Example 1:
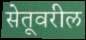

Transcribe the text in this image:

सेतूवरील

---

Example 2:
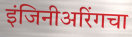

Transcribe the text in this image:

इंजिनीअरिंगचा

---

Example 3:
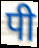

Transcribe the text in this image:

पी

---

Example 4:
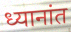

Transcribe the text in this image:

ध्यानांत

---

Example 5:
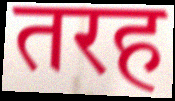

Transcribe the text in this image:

तरह